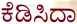
ಕೆಡಿಸಿದಾ